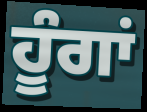
ਹੂੰਗਾਂ